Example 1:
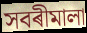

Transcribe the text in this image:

সবৰীমালা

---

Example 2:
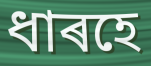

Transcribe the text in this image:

ধাৰহে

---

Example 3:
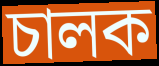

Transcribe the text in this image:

চালক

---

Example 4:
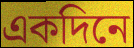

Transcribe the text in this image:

একদিনে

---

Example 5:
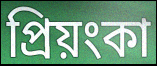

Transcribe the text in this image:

প্ৰিয়ংকা